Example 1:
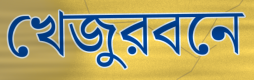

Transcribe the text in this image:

খেজুরবনে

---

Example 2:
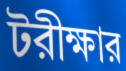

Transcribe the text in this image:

টরীক্ষার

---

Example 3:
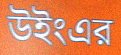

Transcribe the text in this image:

উইংএর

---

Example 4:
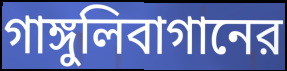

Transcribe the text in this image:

গাঙ্গুলিবাগানের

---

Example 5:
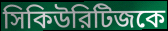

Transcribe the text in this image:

সিকিউরিটিজকে